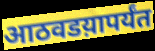
आठवडय़ापर्यंत